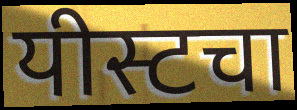
यीस्टचा